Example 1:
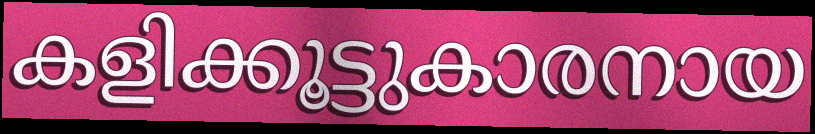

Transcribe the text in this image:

കളിക്കൂട്ടുകാരനായ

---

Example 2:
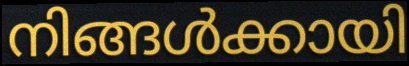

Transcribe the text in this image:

നിങ്ങൾക്കായി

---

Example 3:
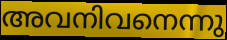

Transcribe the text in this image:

അവനിവനെന്നു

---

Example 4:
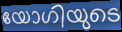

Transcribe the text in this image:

യോഗിയുടെ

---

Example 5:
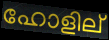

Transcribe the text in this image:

ഹോളില്